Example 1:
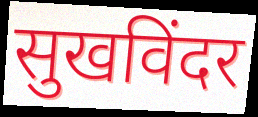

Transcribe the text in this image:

सुखविंदर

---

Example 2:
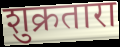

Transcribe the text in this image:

शुक्रतारा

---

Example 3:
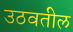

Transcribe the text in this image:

उठवतील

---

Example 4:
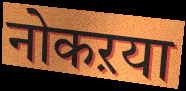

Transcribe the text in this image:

नोकऱया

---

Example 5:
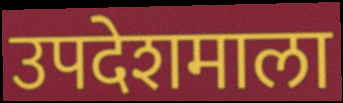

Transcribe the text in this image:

उपदेशमाला